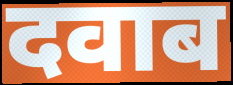
दवाब